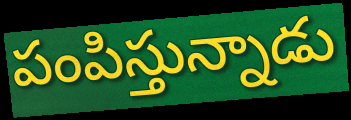
పంపిస్తున్నాడు